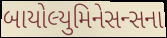
બાયોલ્યુમિનેસન્સના